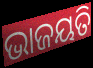
ଭାଜୟତି